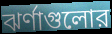
ঝর্ণাগুলোর